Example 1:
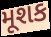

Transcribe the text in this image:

મૂશક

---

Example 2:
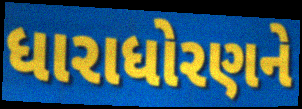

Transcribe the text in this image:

ધારાધોરણને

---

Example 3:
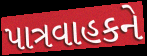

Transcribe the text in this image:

પાત્રવાહકને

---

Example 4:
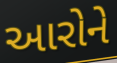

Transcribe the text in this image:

આરોને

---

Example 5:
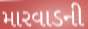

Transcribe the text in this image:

મારવાડની